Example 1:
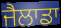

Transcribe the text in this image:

ਜੈਲਾਡਾ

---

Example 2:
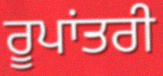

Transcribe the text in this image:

ਰੂਪਾਂਤਰੀ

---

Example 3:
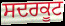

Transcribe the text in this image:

ਸਦਰਕੂਟ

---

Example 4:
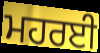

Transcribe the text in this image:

ਮਹਰਈ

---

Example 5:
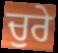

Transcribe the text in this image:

ਚੁਰੇ